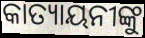
କାତ୍ୟାୟନୀଙ୍କୁ